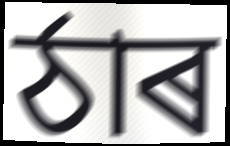
ঠাৰ